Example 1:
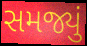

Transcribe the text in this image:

સમજ્યું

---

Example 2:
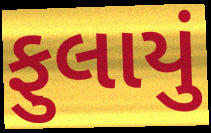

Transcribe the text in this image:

ફુલાયું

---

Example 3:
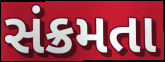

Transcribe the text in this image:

સંક્રમતા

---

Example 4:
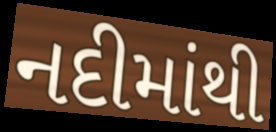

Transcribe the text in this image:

નદીમાંથી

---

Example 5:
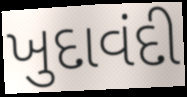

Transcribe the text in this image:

ખુદાવંદી